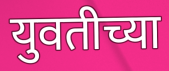
युवतीच्या